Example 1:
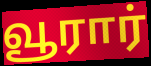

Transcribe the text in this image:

வூரார்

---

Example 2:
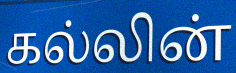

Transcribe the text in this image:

கல்லின்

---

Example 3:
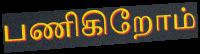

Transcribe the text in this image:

பணிகிறோம்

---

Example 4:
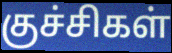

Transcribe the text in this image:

குச்சிகள்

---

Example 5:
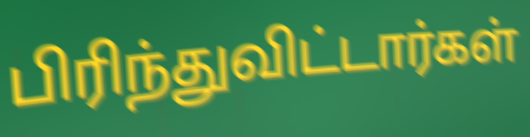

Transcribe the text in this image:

பிரிந்துவிட்டார்கள்